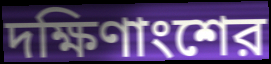
দক্ষিণাংশের